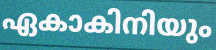
ഏകാകിനിയും